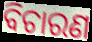
ବିଚାରଣ